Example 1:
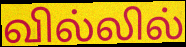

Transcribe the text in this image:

வில்லில்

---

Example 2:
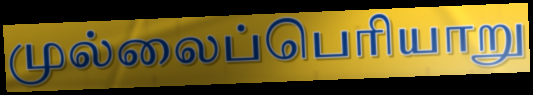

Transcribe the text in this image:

முல்லைப்பெரியாறு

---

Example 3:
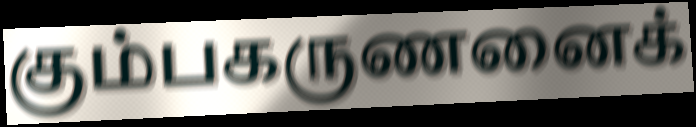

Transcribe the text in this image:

கும்பகருணனைக்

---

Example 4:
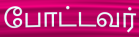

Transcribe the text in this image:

போட்டவர்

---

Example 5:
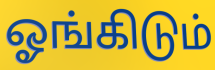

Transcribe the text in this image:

ஓங்கிடும்